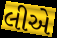
લીએ